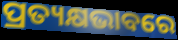
ପ୍ରତ୍ୟକ୍ଷଭାବରେ